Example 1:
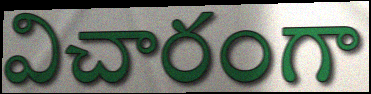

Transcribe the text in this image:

విచారంగా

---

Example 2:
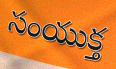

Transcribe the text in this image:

సంయుక్త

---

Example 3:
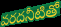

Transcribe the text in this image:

వరదనీటితో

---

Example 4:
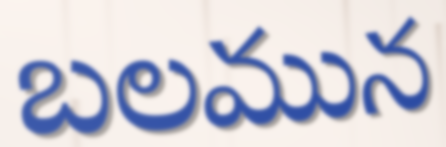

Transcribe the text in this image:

బలమున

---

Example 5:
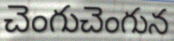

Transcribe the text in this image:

చెంగుచెంగున